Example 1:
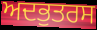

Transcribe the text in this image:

ਅਦਭੁਤਰਸ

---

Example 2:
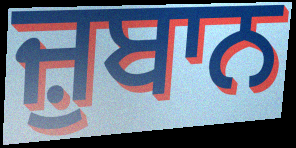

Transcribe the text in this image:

ਜ਼ੁਬਾਨ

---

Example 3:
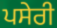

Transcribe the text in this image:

ਪਸੇਰੀ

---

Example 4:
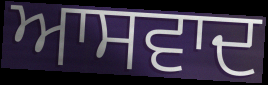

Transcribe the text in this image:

ਆਸਵਾਦ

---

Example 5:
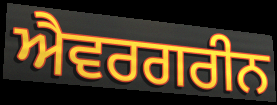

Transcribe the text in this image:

ਐਵਰਗਰੀਨ